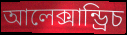
আলেক্সান্ড্রিচ